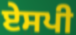
ਏਸਪੀ